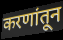
करणांतून